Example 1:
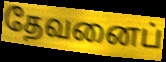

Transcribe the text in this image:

தேவனைப்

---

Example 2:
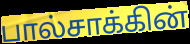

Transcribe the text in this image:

பால்சாக்கின்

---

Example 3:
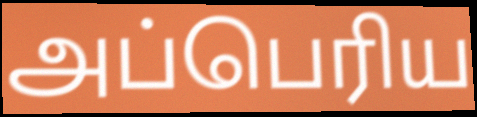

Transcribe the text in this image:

அப்பெரிய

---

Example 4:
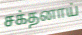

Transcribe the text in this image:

சக்தனாய்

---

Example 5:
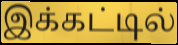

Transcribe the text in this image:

இக்கட்டில்